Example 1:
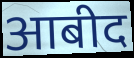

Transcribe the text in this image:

आबीद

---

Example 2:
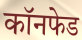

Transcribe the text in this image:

कॉनफेड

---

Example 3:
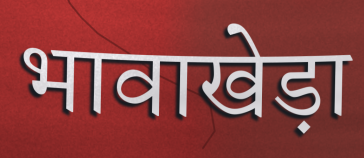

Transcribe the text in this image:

भावाखेड़ा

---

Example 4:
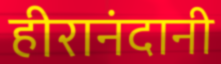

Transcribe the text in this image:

हीरानंदानी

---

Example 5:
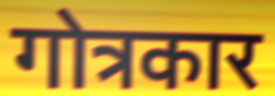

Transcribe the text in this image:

गोत्रकार